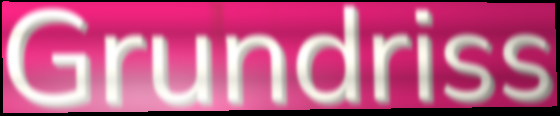
Grundriss